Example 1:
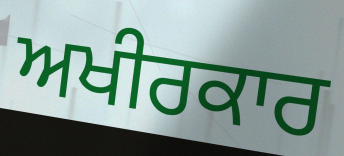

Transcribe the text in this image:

ਅਖੀਰਕਾਰ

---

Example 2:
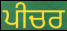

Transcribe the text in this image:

ਪੀਚਰ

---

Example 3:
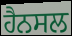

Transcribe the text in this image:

ਹੈਨਸਲ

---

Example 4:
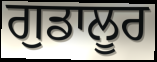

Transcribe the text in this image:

ਗੁਡਾਲੂਰ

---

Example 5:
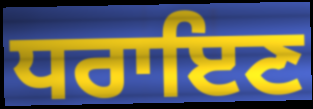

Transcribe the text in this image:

ਧਰਾਇਣ